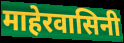
माहेरवासिनी